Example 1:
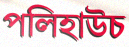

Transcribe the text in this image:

পলিহাউচ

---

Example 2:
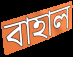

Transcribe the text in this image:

বাহাল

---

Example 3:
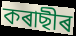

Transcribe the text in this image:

কৰাছীৰ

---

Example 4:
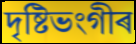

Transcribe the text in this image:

দৃষ্টিভংগীৰ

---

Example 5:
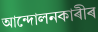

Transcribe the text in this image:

আন্দোলনকাৰীৰ